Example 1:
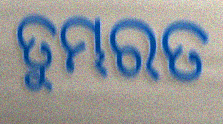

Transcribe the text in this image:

ତୁମ୍ଭରତ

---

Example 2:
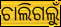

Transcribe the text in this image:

ଚାଲିଗଲୁଁ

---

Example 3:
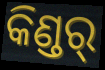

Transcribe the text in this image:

କିଣ୍ଡର୍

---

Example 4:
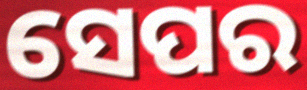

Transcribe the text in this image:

ସେପର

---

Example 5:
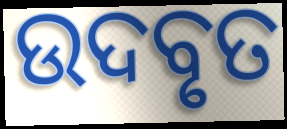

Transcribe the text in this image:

ଉଦବୃତ